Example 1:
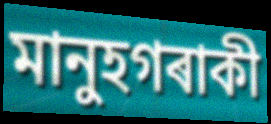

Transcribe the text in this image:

মানুহগৰাকী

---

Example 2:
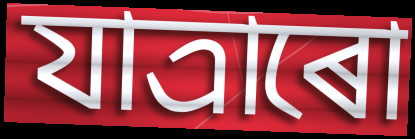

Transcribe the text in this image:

যাত্ৰাৰো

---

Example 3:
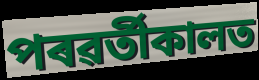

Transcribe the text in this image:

পৰৱৰ্তীকালত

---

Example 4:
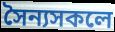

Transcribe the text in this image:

সৈন্যসকলে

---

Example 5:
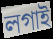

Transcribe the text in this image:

লগাই